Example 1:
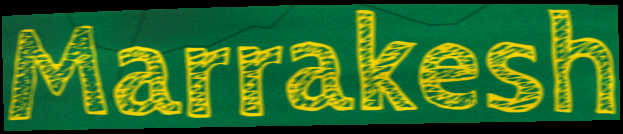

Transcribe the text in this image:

Marrakesh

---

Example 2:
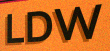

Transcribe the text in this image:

LDW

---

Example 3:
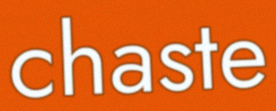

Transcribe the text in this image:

chaste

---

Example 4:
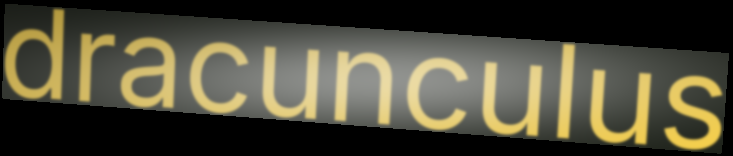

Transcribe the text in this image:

dracunculus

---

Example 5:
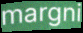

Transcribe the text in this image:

margni